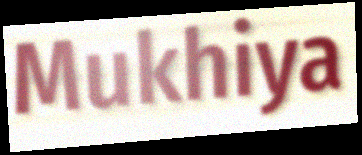
Mukhiya